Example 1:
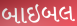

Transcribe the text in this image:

બાઇબલ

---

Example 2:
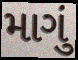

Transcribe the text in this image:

માગું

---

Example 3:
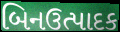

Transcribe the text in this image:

બિનઉત્પાદક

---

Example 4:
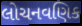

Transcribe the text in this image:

લોચનવણિક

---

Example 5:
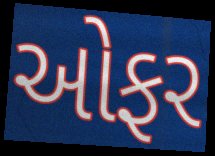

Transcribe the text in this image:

ઓફર